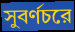
সুবর্ণচরে